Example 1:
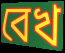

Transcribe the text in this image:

বেখ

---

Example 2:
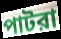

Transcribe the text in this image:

পাটরা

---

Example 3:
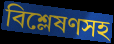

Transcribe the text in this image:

বিশ্লেষণসহ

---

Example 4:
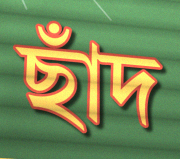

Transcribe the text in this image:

ছাঁদ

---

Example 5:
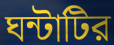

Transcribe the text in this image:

ঘন্টাটির